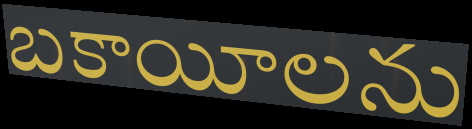
బకాయీలను